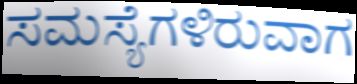
ಸಮಸ್ಯೆಗಳಿರುವಾಗ